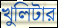
খুলিটার